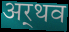
अर्थव